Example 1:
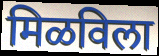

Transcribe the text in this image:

मिळविला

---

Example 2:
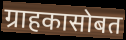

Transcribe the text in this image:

ग्राहकासोबत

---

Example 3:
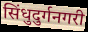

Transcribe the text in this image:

सिंधुदुर्गनगरी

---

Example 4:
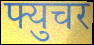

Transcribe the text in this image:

फ्युचर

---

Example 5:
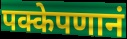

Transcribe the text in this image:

पक्केपणानं